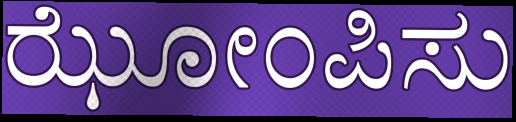
ಝೋಂಪಿಸು